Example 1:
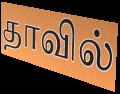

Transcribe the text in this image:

தாவில்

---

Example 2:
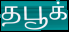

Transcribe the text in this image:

தபூக்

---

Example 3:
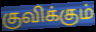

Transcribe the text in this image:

குவிக்கும்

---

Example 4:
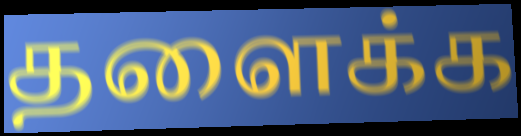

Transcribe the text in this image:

தளைக்க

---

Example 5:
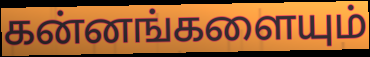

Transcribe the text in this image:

கன்னங்களையும்